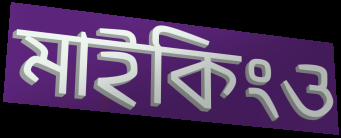
মাইকিংও